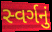
સ્વર્ગનું